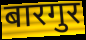
बारगुर